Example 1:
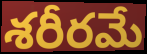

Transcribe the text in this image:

శరీరమే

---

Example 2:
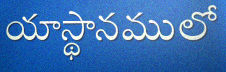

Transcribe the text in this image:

యాస్థానములో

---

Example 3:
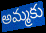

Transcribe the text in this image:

అమ్మకు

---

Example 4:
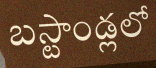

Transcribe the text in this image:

బస్టాండ్లలో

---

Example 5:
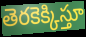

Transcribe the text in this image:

తెరకెక్కిస్తూ